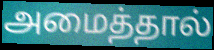
அமைத்தால்